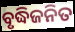
ବୃଦ୍ଧିଜନିତ